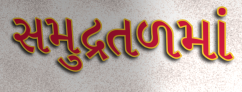
સમુદ્રતળમાં